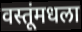
वस्तूंमधला